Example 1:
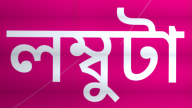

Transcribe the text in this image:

লম্বুটা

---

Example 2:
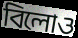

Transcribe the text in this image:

বিলোও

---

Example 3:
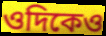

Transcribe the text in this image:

ওদিকেও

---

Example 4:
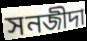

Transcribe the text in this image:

সনজীদা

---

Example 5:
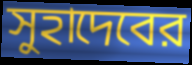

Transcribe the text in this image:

সুহাদেবের